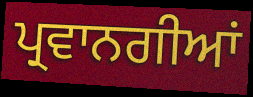
ਪ੍ਰਵਾਨਗੀਆਂ